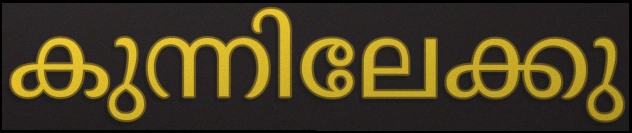
കുന്നിലേക്കു